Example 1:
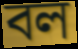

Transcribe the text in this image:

বল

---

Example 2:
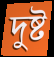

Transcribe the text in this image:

দুষ্ট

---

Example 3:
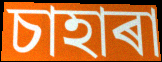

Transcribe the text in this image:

চাহাৰা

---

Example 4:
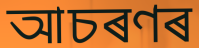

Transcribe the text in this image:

আচৰণৰ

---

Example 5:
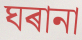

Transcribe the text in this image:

ঘৰানা